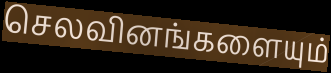
செலவினங்களையும்